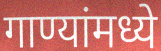
गाण्यांमध्ये